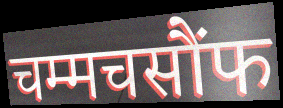
चम्मचसौंफ